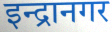
इन्द्रानगर